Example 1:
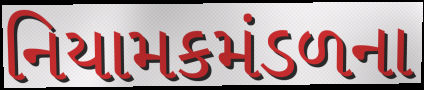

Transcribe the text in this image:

નિયામકમંડળના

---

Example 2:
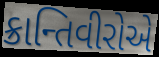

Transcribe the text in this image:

ક્રાન્તિવીરોએ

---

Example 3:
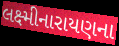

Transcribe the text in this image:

લક્ષ્મીનારાયણના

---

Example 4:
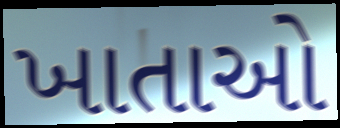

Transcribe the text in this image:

ખાતાઓ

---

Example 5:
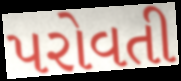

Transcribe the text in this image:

પરોવતી